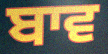
ਬਾਵ